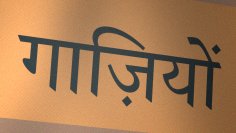
गाज़ियों